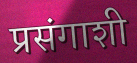
प्रसंगाशी